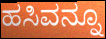
ಹಸಿವನ್ನೂ